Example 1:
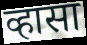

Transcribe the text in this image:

व्हासा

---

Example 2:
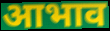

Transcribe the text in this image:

आभाव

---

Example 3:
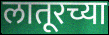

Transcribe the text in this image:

लातूरच्या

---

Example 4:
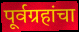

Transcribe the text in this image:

पूर्वग्रहांचा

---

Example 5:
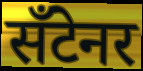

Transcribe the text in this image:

सँटेनर